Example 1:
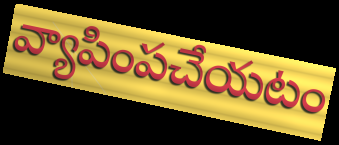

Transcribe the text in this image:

వ్యాపింపచేయటం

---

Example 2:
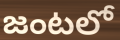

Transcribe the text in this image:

జంటలో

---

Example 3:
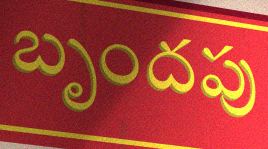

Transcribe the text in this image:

బృందపు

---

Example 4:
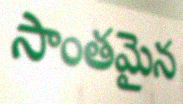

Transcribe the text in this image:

సాంతమైన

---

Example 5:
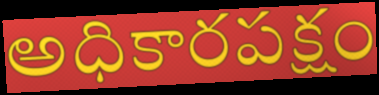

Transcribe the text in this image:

అధికారపక్షం